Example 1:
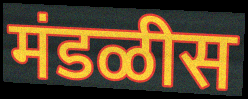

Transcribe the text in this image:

मंडळीस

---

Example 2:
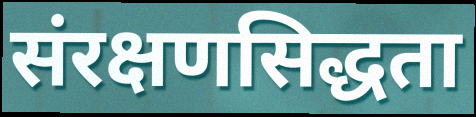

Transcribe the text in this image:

संरक्षणसिद्धता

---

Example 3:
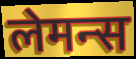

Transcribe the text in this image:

लेमन्स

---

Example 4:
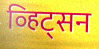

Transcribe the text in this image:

व्हिट्सन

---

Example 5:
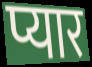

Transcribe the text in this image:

प्यार